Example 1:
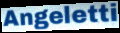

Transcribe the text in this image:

Angeletti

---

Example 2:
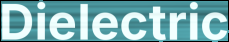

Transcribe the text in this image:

Dielectric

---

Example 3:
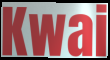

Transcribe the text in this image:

Kwai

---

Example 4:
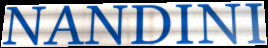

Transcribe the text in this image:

NANDINI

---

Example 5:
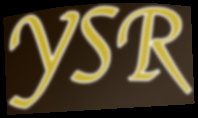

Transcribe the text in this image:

YSR